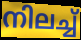
നിലച്ച്